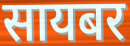
सायबर